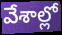
వేశాల్లో